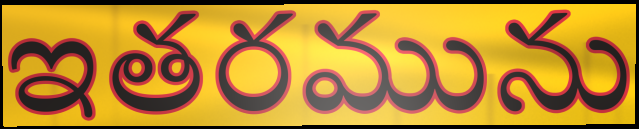
ఇతరమును